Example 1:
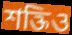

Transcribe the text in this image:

শক্তিও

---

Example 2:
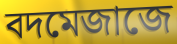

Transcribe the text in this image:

বদমেজাজে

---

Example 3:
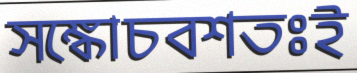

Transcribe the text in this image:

সঙ্কোচবশতঃই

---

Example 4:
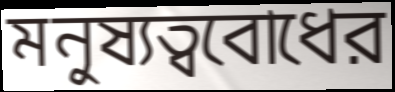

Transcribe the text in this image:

মনুষ্যত্ববোধের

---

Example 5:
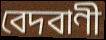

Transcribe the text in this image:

বেদবাণী